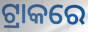
ଟ୍ରାକରେ